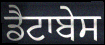
ਡੈਟਾਬੇਸ